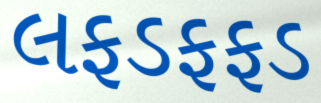
લફડફફડ